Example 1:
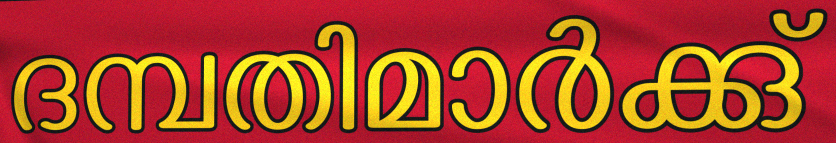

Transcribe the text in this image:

ദമ്പതിമാർക്കു്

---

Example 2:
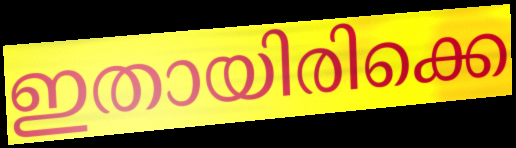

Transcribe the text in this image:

ഇതായിരിക്കെ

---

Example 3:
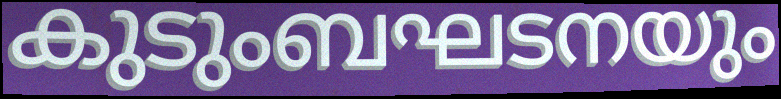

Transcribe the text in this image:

കുടുംബഘടനയും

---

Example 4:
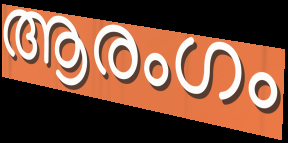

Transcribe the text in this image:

ആരംഗം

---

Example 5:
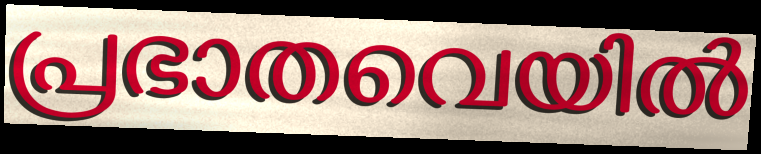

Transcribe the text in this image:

പ്രഭാതവെയിൽ